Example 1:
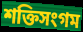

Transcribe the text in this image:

শক্তিসংগম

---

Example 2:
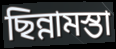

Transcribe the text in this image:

ছিন্নামস্তা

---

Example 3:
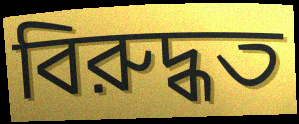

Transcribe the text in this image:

বিৰুদ্ধত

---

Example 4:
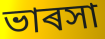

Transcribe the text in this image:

ভাৰসা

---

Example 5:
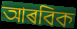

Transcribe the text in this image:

আৰবিক